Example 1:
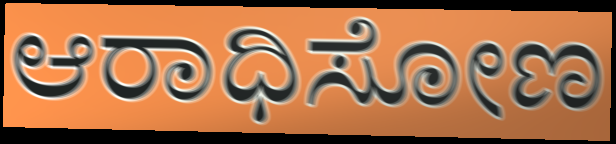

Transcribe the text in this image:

ಆರಾಧಿಸೋಣ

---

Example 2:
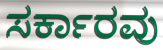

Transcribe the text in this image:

ಸರ್ಕಾರವು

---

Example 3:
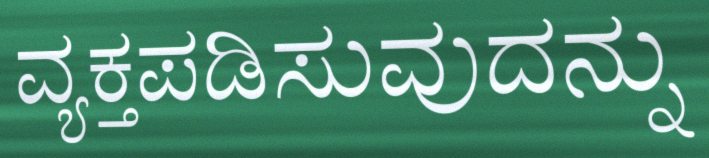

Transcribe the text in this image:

ವ್ಯಕ್ತಪಡಿಸುವುದನ್ನು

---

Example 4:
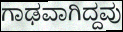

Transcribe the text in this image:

ಗಾಢವಾಗಿದ್ದವು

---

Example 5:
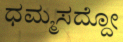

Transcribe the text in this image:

ಧಮ್ಮಸದ್ದೋ